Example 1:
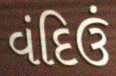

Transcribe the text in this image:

વંદિઉં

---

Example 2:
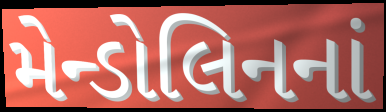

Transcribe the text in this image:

મેન્ડોલિનનાં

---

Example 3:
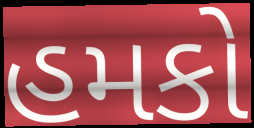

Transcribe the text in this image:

હમકો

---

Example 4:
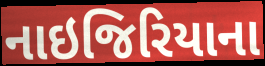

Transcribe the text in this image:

નાઇજિરિયાના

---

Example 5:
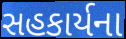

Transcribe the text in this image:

સહકાર્યના